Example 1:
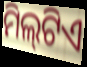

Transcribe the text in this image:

ମିଲ୍‌ଟିଏ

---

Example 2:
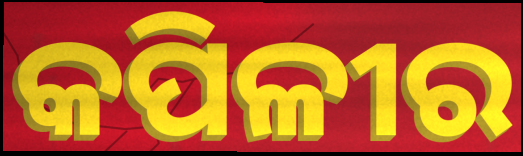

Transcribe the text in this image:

କପିଳୀର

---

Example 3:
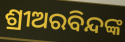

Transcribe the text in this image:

ଶ୍ରୀଅରବିନ୍ଦଙ୍କ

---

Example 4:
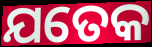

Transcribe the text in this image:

ଯତେକ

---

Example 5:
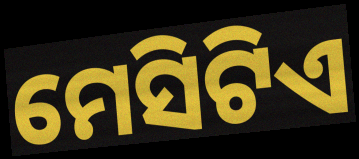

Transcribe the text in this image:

ମେସିଟିଏ